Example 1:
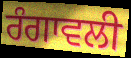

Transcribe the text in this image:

ਰੰਗਾਵਲੀ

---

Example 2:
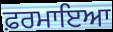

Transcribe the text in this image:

ਫ਼ਰਮਾਇਆ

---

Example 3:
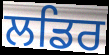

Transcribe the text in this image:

ਲਡਿਰ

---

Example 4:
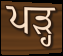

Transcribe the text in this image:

ਪੜ੍ਹ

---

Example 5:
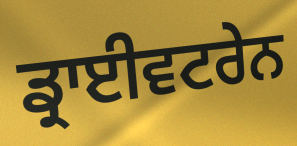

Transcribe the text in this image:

ਡ੍ਰਾਈਵਟਰੇਨ